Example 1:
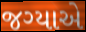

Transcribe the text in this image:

જગ્યાએ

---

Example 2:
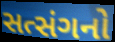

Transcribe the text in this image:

સત્સંગનો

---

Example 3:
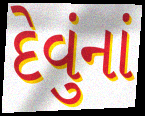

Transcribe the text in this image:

દેવુંનાં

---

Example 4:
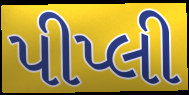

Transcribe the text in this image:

પીપ્લી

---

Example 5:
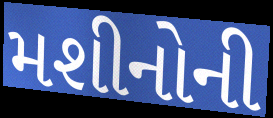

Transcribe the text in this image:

મશીનોની